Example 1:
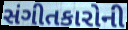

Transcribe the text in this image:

સંગીતકારોની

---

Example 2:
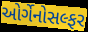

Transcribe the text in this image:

ઓર્ગેનોસલ્ફર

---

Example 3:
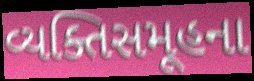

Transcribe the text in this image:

વ્યક્તિસમૂહના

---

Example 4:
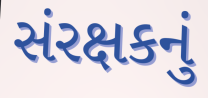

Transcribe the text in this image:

સંરક્ષકનું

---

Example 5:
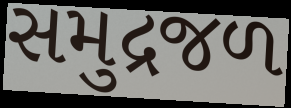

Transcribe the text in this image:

સમુદ્રજળ